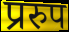
प्ररुप